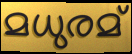
മധുരമ്